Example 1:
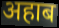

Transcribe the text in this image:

अहाब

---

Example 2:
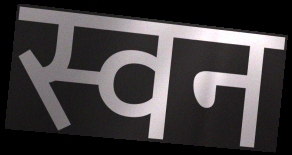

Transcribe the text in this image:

स्वन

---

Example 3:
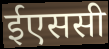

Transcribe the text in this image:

ईएससी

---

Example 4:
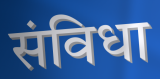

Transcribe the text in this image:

संविधा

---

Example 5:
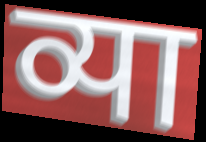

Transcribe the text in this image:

व्या